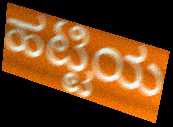
ಹಟ್ಟಿಯ